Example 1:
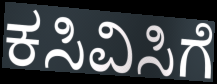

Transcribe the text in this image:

ಕಸಿವಿಸಿಗೆ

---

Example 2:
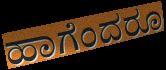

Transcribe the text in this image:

ಹಾಗೆಂದರೂ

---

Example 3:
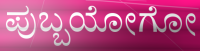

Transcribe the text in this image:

ಪುಬ್ಬಯೋಗೋ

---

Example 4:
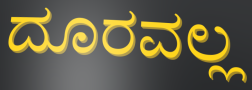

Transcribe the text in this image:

ದೂರವಲ್ಲ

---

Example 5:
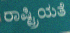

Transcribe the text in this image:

ರಾಷ್ಟ್ರಿಯತೆ